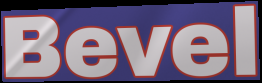
Bevel